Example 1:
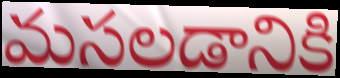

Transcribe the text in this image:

మసలడానికి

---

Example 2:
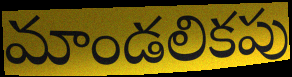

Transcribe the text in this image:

మాండలికపు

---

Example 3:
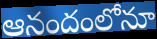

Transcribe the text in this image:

ఆనందంలోనూ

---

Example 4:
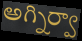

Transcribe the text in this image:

అగ్నిర్వా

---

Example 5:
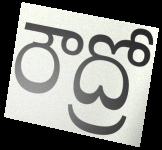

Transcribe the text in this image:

రౌద్రో